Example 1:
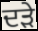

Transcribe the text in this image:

ਦੜੇ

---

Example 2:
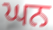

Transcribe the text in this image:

ਘਨ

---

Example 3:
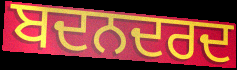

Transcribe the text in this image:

ਬਦਨਦਰਦ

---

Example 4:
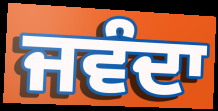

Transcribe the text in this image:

ਜਵੰਦਾ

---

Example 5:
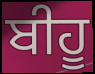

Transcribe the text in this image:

ਬੀਹੂ